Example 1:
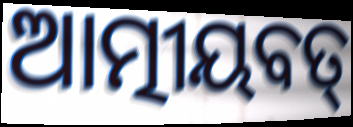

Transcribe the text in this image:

ଆତ୍ମୀୟବତ୍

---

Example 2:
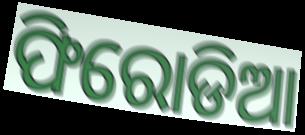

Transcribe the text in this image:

ଫିରୋଡିଆ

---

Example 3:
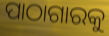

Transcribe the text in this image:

ପାଠାଗାରକୁ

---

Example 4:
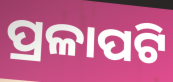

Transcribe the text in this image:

ପ୍ରଳାପଟି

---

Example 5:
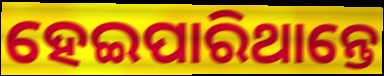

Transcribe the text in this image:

ହେଇପାରିଥାନ୍ତେ